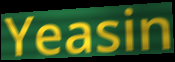
Yeasin